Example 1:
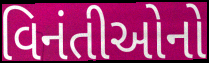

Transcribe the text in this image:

વિનંતીઓનો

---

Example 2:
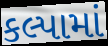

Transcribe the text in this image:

કલ્પામાં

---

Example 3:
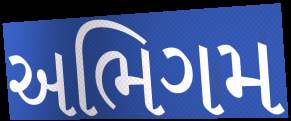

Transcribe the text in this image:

અભિગમ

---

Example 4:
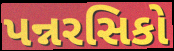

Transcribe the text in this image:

પન્નરસિકો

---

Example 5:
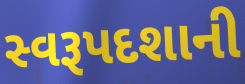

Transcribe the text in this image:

સ્વરૂપદશાની